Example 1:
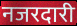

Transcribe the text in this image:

नजरदारी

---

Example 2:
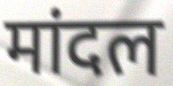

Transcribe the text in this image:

मांदल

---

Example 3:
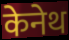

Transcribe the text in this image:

केनेथ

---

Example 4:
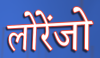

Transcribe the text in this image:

लोरेंजो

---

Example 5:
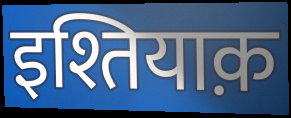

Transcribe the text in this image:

इश्तियाक़